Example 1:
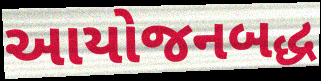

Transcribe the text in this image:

આયોજનબદ્ધ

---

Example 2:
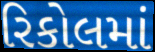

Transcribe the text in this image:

રિકોલમાં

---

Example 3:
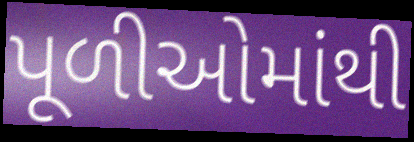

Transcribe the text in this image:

પૂળીઓમાંથી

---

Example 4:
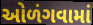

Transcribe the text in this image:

ઓળંગવામાં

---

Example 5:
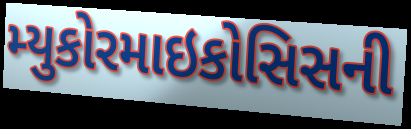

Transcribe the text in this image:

મ્યુકોરમાઇકોસિસની